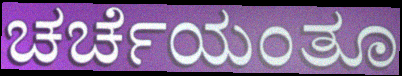
ಚರ್ಚೆಯಂತೂ